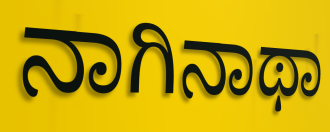
ನಾಗಿನಾಥಾ